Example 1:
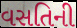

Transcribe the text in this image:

વસતિની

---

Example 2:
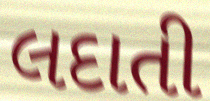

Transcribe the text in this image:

લદાતી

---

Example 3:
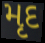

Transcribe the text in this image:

મૃદ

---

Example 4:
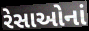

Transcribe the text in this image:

રેસાઓનાં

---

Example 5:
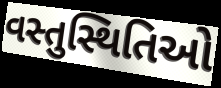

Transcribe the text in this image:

વસ્તુસ્થિતિઓ